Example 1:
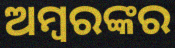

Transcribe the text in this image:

ଅମ୍ବରଙ୍କର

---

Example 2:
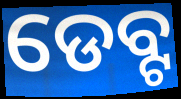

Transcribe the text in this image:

ଡେବ୍ଟ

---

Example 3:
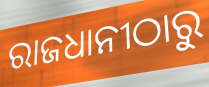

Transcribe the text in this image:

ରାଜଧାନୀଠାରୁ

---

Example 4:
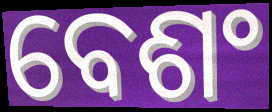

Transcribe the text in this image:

ବେଶଂ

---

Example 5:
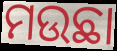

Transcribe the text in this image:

ମଉଛା